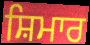
ਸ਼ਿਮਾਰ